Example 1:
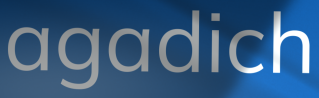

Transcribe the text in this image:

agadich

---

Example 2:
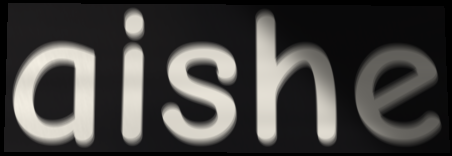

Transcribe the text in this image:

aishe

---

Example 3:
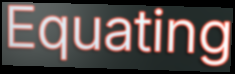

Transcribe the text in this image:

Equating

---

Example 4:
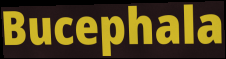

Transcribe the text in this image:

Bucephala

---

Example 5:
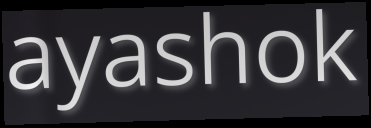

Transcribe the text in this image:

ayashok